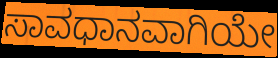
ಸಾವಧಾನವಾಗಿಯೇ